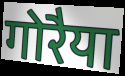
गोरैया